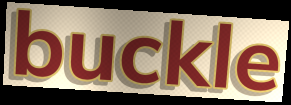
buckle